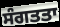
ਸੰਗਤਤਾ